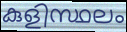
കുളിസ്ഥലം